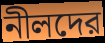
নীলদের